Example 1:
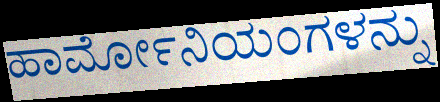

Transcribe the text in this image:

ಹಾರ್ಮೋನಿಯಂಗಳನ್ನು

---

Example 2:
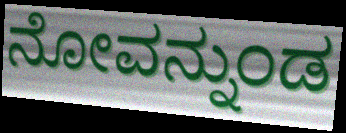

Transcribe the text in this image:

ನೋವನ್ನುಂಡ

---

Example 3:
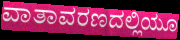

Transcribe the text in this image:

ವಾತಾವರಣದಲ್ಲಿಯೂ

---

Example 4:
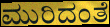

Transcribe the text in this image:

ಮುರಿದಂತೆ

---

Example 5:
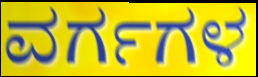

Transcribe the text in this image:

ವರ್ಗಗಳ